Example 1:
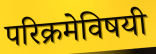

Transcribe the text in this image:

परिक्रमेविषयी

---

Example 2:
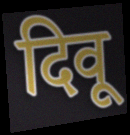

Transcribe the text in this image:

दिवू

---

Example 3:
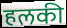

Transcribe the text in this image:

हलकी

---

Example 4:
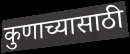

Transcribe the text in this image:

कुणाच्यासाठी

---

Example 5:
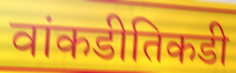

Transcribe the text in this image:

वांकडीतिकडी